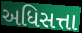
અધિસત્તા